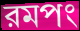
রমপং